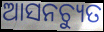
ଆସନଚ୍ୟୁତ